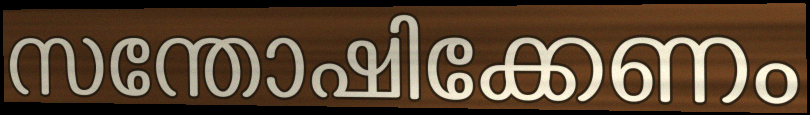
സന്തോഷിക്കേണം